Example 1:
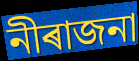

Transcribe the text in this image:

নীৰাজনা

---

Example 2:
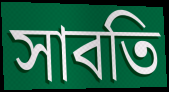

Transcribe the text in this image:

সাবতি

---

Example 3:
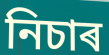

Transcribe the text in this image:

নিচাৰ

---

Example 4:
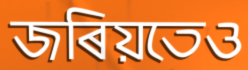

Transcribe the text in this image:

জৰিয়তেও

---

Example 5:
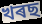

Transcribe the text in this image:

খৰছ